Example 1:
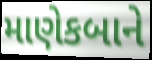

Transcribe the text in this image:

માણેકબાને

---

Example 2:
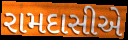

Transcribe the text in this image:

રામદાસીએ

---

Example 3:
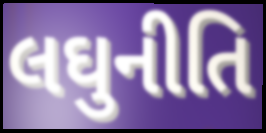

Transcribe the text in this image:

લઘુનીતિ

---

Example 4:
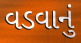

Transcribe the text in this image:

વડવાનું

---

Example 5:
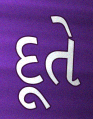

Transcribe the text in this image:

દૂતે